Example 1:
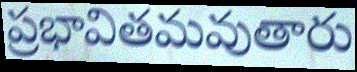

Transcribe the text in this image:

ప్రభావితమవుతారు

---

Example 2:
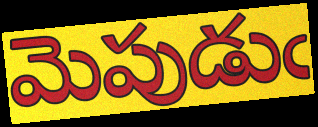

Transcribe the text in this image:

మెపుడుఁ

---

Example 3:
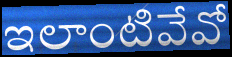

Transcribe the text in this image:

ఇలాంటివేవో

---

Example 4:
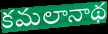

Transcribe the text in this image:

కమలానాథ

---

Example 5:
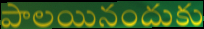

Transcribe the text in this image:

పాలయినందుకు